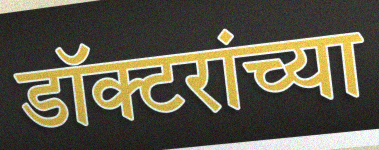
डॉक्टरांच्या